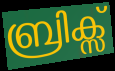
ബ്രിക്സ്